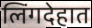
लिंगदेहात